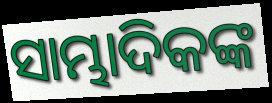
ସାମ୍ଭାଦିକଙ୍କ